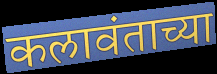
कलावंताच्या